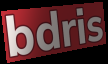
bdris